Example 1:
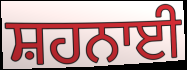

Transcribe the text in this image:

ਸ਼ਹਨਾਈ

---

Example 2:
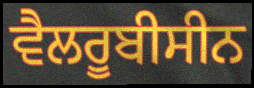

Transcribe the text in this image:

ਵੈਲਰੂਬੀਸੀਨ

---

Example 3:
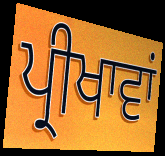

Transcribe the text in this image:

ਪ੍ਰੀਖਾਵਾਂ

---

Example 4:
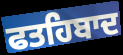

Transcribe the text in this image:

ਫਤਹਿਬਾਦ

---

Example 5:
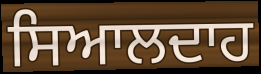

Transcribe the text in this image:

ਸਿਆਲਦਾਹ